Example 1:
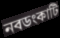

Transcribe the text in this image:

নবডংকাটি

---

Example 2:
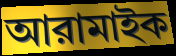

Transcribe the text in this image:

আরামাইক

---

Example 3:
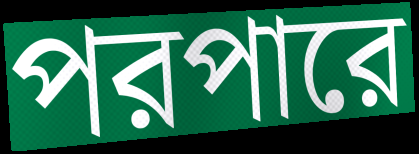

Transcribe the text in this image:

পরপারে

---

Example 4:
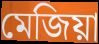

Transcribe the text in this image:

মেজিয়া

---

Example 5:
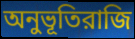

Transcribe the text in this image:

অনুভূতিরাজি